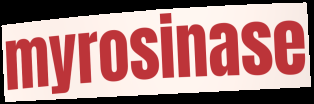
myrosinase